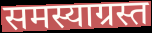
समस्याग्रस्त